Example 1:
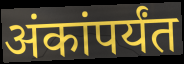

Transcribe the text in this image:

अंकांपर्यंत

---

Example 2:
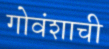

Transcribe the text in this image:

गोवंशाची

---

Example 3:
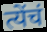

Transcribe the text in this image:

त्येंचं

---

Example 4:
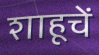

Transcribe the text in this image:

शाहूचें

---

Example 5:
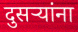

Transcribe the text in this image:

दुसर्‍यांना